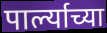
पार्ल्याच्या